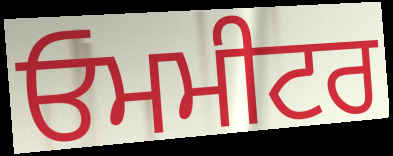
ਓਮਮੀਟਰ